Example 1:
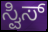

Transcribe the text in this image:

ಸ್ವಿಸ್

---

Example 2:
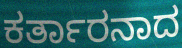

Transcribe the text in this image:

ಕರ್ತಾರನಾದ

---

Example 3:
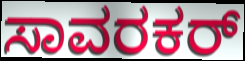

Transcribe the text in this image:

ಸಾವರಕರ್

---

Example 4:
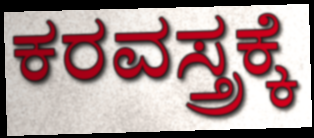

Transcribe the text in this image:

ಕರವಸ್ತ್ರಕ್ಕೆ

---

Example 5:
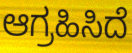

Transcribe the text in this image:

ಆಗ್ರಹಿಸಿದೆ